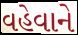
વહેવાને